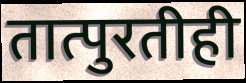
तात्पुरतीही